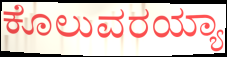
ಕೊಲುವರಯ್ಯಾ